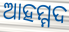
ଆହମ୍ମଦ